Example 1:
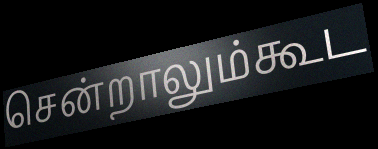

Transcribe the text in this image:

சென்றாலும்கூட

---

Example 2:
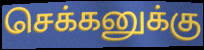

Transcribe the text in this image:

செக்கனுக்கு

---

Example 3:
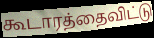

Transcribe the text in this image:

கூடாரத்தைவிட்டு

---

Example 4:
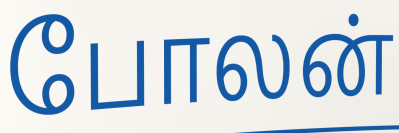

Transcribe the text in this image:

போலன்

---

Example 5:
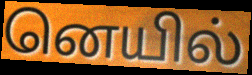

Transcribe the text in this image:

னெயில்